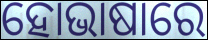
ହୋଭାଷାରେ